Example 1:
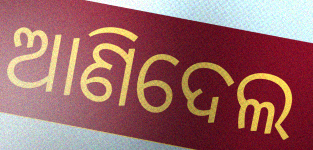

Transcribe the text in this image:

ଆଣିଦେଲ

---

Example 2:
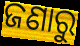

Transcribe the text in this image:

ଜଣାରୁ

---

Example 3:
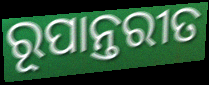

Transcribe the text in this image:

ରୂପାନ୍ତରୀତ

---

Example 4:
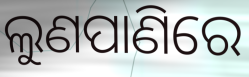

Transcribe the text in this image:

ଲୁଣପାଣିରେ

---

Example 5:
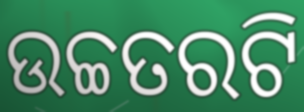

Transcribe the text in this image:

ଉଚ୍ଚତରଟି